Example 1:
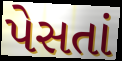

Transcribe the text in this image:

પેસતાં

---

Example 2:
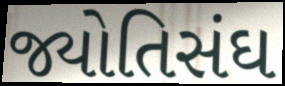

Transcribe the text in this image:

જ્યોતિસંઘ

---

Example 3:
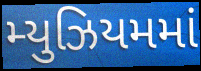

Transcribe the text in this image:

મ્યુઝિયમમાં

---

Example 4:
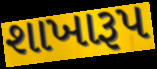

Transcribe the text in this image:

શાખારૂપ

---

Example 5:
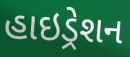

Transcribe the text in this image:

હાઇડ્રેશન